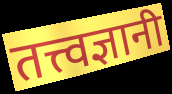
तत्त्वज्ञानी